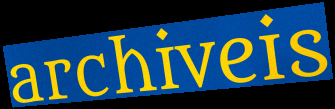
archiveis